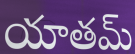
యాతమ్